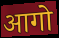
आगो